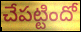
చేపట్టిందో